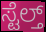
ಸ್ಟೆಲ್ತ್